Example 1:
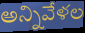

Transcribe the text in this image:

అన్నివేళల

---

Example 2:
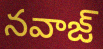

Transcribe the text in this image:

నవాజ్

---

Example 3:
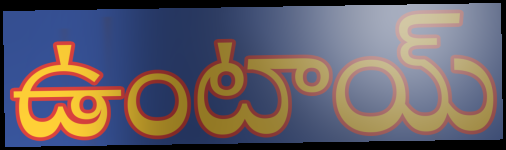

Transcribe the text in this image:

ఉంటాయ్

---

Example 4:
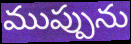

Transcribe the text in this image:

ముప్పును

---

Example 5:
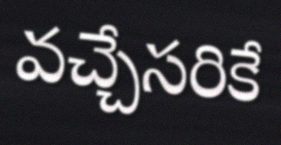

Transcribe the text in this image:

వచ్చేసరికే